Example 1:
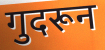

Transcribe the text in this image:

गुदरून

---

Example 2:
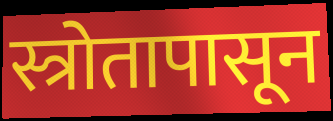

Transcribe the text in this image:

स्त्रोतापासून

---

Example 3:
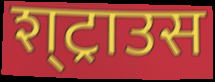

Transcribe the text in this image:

श्ट्राउस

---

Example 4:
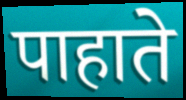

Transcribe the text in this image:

पाहाते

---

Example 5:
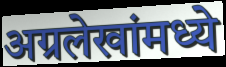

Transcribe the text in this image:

अग्रलेखांमध्ये